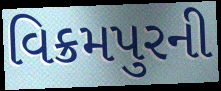
વિક્રમપુરની